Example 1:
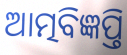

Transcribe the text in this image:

ଆତ୍ମବିଜ୍ଞପ୍ତି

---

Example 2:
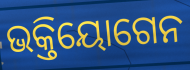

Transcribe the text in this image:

ଭକ୍ତିୟୋଗେନ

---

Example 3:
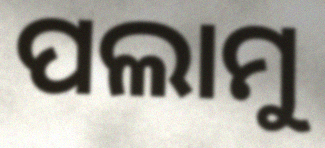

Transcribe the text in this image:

ପଲାମୁ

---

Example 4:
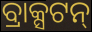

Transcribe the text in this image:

ବ୍ରାକ୍ସଟନ୍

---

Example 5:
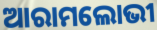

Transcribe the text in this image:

ଆରାମଲୋଭୀ